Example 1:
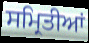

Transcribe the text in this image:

ਸਮ੍ਰਿਤੀਆਂ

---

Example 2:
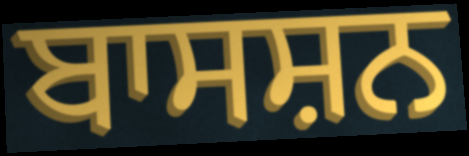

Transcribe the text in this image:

ਬਾਸਸ਼ਨ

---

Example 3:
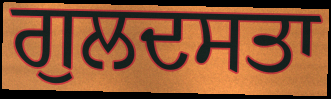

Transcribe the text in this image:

ਗੁਲਦਸਤਾ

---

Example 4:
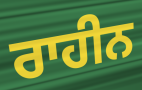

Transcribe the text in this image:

ਰਾਹੀਨ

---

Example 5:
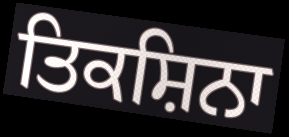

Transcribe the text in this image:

ਤਿਕਸ਼ਿਨਾ